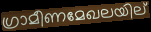
ഗ്രാമീണമേഖലയില്